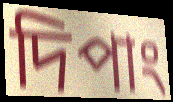
দিপাং